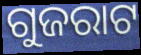
ଗୁଜରାଟ